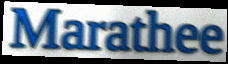
Marathee